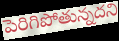
పెరిగిపోతున్నదని